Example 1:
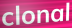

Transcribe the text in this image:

clonal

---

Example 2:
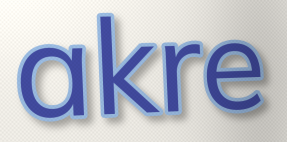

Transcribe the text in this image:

akre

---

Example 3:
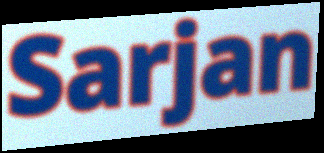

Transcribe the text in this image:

Sarjan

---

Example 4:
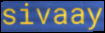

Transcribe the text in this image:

sivaay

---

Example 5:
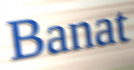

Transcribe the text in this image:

Banat